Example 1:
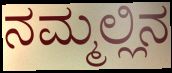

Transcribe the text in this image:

ನಮ್ಮಲ್ಲಿನ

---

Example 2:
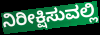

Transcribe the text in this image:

ನಿರೀಕ್ಷಿಸುವಲ್ಲಿ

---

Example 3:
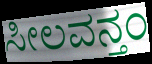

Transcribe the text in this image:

ಸೀಲವನ್ತಂ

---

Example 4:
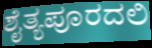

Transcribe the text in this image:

ಶೈತ್ಯಪೂರದಲಿ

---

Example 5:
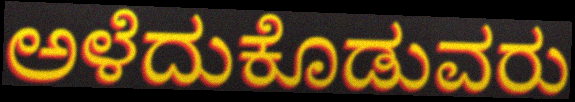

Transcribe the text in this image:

ಅಳೆದುಕೊಡುವರು